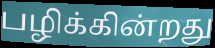
பழிக்கின்றது